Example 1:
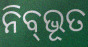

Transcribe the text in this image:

ନିବ୍‌ଭୂତ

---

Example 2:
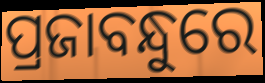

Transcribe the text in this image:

ପ୍ରଜାବନ୍ଧୁରେ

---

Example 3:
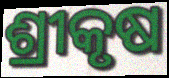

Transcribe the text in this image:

ଶ୍ରୀକୃଷ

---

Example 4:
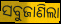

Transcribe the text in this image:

ସବୁଜାଣିଲା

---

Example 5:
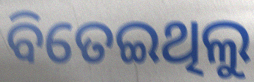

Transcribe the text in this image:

ବିତେଇଥିଲୁ